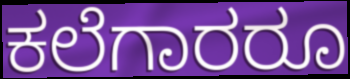
ಕಲೆಗಾರರೂ